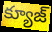
క్యూజ్